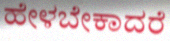
ಹೇಳಬೇಕಾದರೆ